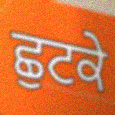
ਛੁਟਕੇ